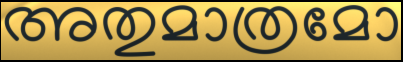
അതുമാത്രമോ